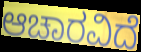
ಆಚಾರವಿದೆ